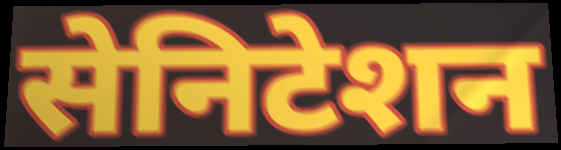
सेनिटेशन